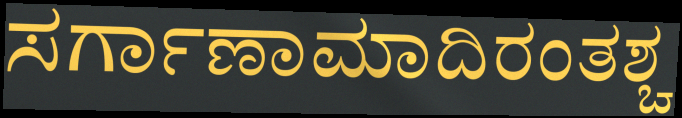
ಸರ್ಗಾಣಾಮಾದಿರಂತಶ್ಚ